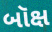
બૉક્ષ